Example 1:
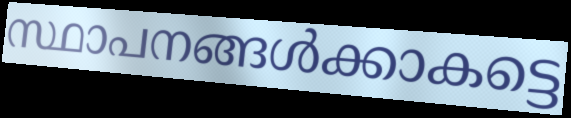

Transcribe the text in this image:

സ്ഥാപനങ്ങൾക്കാകട്ടെ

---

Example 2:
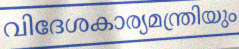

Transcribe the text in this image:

വിദേശകാര്യമന്ത്രിയും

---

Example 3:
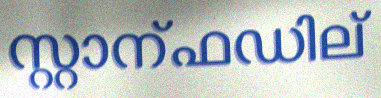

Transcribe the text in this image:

സ്റ്റാന്ഫഡില്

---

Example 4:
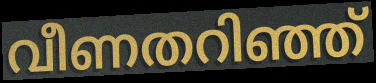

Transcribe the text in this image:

വീണതറിഞ്ഞ്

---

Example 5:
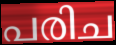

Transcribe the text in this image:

പരിച